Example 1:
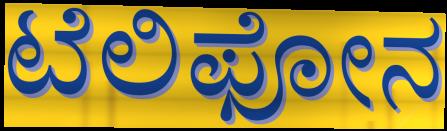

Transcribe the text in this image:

ಟೆಲಿಫೋನ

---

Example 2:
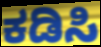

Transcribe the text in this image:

ಕಡಿಸಿ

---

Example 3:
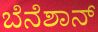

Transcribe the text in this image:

ಬೆನೆಶಾನ್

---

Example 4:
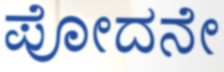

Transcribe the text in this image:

ಪೋದನೇ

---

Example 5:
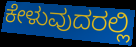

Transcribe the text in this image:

ಕೇಳುವುದರಲ್ಲಿ